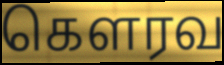
கெளரவ